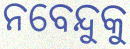
ନବେନ୍ଦୁକୁ